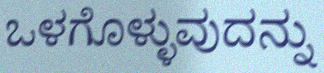
ಒಳಗೊಳ್ಳುವುದನ್ನು